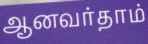
ஆனவர்தாம்